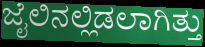
ಜೈಲಿನಲ್ಲಿಡಲಾಗಿತ್ತು